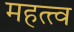
महत्‍त्‍व